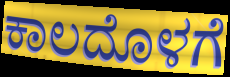
ಕಾಲದೊಳಗೆ